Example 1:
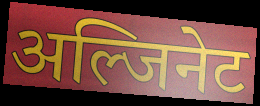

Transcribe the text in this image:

अल्जिनेट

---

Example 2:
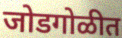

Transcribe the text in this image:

जोडगोळीत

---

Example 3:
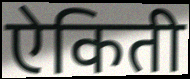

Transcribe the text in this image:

ऐकिती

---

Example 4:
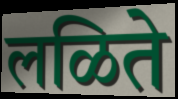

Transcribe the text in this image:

लळिते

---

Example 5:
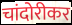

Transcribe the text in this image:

चांदोरीकर